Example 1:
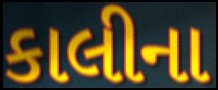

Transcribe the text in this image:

કાલીના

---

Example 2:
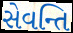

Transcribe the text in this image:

સેવન્તિ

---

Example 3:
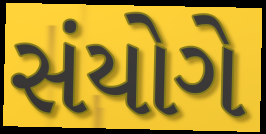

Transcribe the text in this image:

સંયોગે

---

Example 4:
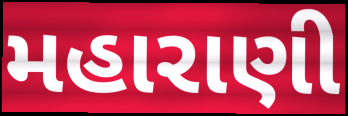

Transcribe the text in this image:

મહારાણી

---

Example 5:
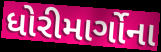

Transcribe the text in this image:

ધોરીમાર્ગોના